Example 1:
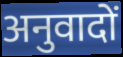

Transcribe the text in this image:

अनुवादों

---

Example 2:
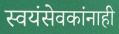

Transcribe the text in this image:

स्वयंसेवकांनाही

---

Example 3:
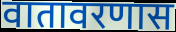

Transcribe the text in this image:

वातावरणास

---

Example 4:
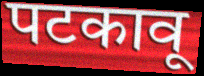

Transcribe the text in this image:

पटकावू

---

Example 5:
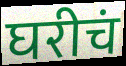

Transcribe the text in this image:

घरीचं